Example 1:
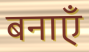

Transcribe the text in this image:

बनाएँ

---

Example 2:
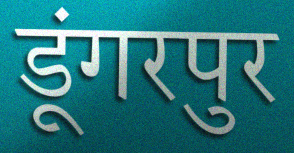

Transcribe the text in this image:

डूंगरपुर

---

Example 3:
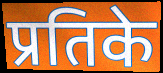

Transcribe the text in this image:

प्रतिके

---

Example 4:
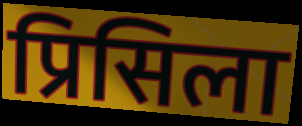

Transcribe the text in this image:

प्रिसिला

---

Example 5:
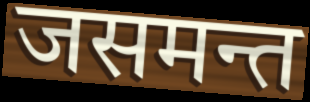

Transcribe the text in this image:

जसमन्त